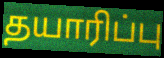
தயாரிப்பு